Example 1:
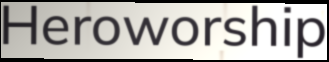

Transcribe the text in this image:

Heroworship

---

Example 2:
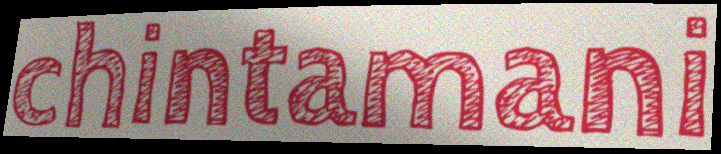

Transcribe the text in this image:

chintamani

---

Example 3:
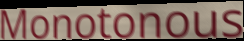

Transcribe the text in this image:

Monotonous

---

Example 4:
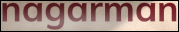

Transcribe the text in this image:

nagarman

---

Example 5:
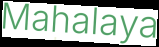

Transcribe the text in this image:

Mahalaya